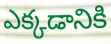
ఎక్కడానికి